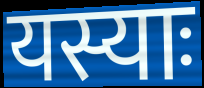
यस्याः